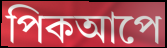
পিকআপে